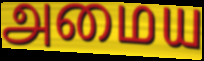
அமைய